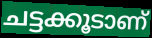
ചട്ടക്കൂടാണ്